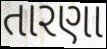
તારણા